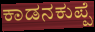
ಕಾಡನಕುಪ್ಪೆ